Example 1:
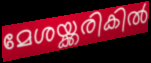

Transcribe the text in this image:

മേശയ്ക്കരികിൽ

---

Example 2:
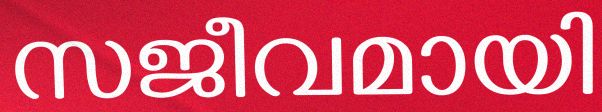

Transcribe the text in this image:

സജീവമായി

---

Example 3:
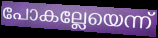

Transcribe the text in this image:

പോകല്ലേയെന്ന്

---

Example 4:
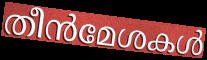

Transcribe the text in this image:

തീൻമേശകൾ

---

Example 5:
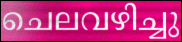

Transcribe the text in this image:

ചെലവഴിച്ചു